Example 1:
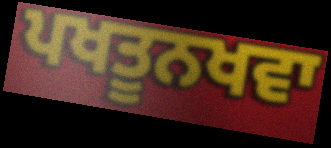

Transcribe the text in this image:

ਪਖਤੂਨਖਵਾ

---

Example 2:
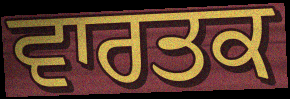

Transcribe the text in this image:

ਵਾਰਤਕ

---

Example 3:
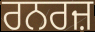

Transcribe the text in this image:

ਰਨਰਜ਼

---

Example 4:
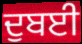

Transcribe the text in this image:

ਦੁਬਈ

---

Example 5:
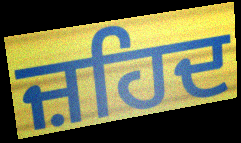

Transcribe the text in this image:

ਜ਼ਹਿਦ